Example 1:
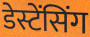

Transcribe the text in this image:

डेस्टेंसिंग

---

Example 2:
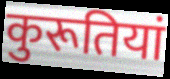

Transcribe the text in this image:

कुरूतियां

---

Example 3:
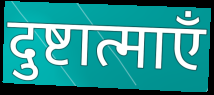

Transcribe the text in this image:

दुष्टात्माएँ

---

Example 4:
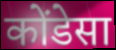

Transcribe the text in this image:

कोंडेसा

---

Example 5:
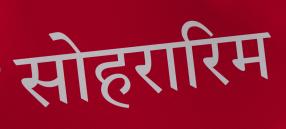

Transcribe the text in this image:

सोहरारिम